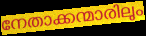
നേതാക്കന്മാരിലും